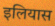
इलियास